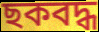
ছকবদ্ধ